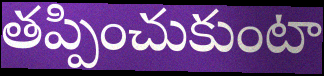
తప్పించుకుంటా